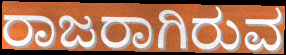
ರಾಜರಾಗಿರುವ